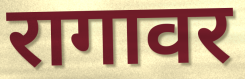
रागावर